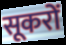
सूकरों